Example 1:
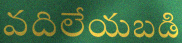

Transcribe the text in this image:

వదిలేయబడి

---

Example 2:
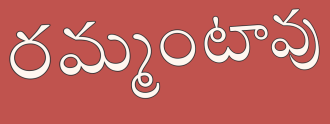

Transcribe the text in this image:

రమ్మంటావు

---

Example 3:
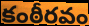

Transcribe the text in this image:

కంఠీరవం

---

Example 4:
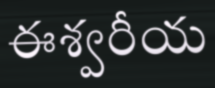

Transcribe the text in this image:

ఈశ్వరీయ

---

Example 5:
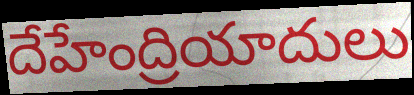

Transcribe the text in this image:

దేహేంద్రియాదులు